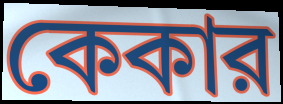
কেকার